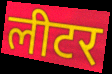
लीटर